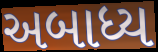
અબાધ્ય